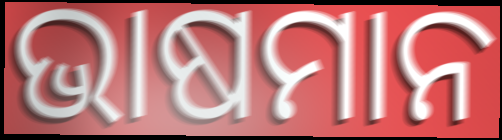
ଭାଷମାନ